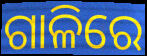
ଗାଳିରେ